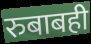
रुबाबही